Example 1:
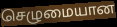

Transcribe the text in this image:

செழுமையான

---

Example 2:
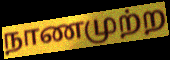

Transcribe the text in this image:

நாணமுற்ற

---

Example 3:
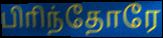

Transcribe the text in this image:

பிரிந்தோரே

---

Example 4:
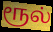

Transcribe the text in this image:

ரூல்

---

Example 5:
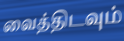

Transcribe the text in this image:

வைத்திடவும்